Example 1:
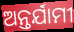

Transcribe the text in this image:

ଅନ୍ତର୍ଯାମୀ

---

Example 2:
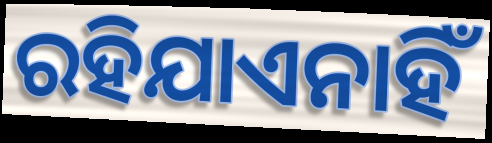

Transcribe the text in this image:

ରହିଯାଏନାହିଁ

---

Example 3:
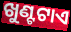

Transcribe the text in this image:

ଖୁଣ୍ଟଟାଏ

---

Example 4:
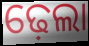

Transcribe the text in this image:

ଢ଼େଲା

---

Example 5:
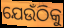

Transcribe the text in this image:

ଯେଉଁଠିକୁ